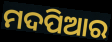
ମଦପିଆର